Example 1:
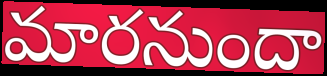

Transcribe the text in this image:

మారనుందా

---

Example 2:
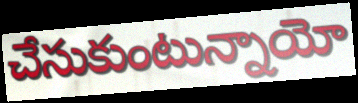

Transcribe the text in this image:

చేసుకుంటున్నాయో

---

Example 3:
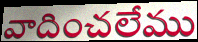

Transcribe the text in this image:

వాదించలేము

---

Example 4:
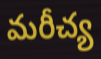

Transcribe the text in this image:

మరీచ్య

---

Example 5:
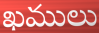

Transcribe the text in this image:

ఖములు